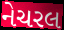
નેચરલ